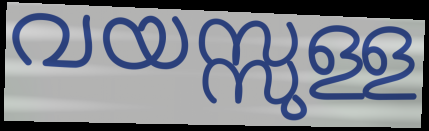
വയസ്സുള്ള